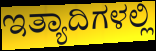
ಇತ್ಯಾದಿಗಳಲ್ಲಿ